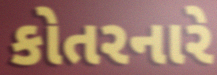
કોતરનારે